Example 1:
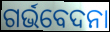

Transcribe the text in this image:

ଗର୍ଭବେଦନା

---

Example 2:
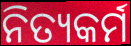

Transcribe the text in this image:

ନିତ୍ଯକର୍ମ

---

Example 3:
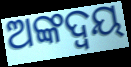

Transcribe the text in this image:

ଅଙ୍କଦ୍ବୟ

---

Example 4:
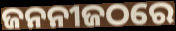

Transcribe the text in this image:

ଜନନୀଜଠରେ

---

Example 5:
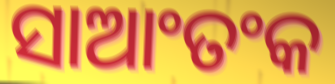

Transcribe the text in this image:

ସାଆଂତଂକ